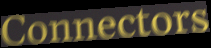
Connectors